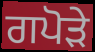
ਗਪੋੜੇ